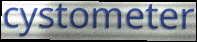
cystometer